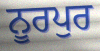
ਨੂਰਪੁਰ